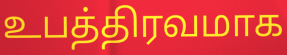
உபத்திரவமாக